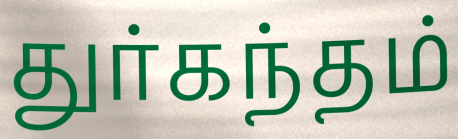
துர்கந்தம்